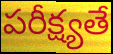
పరీక్ష్యతే